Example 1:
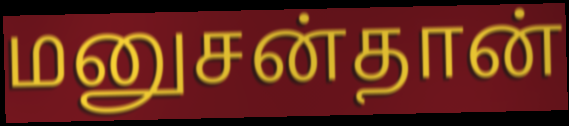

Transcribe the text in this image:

மனுசன்தான்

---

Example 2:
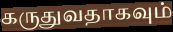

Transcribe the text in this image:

கருதுவதாகவும்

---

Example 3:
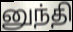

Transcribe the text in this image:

னுந்தி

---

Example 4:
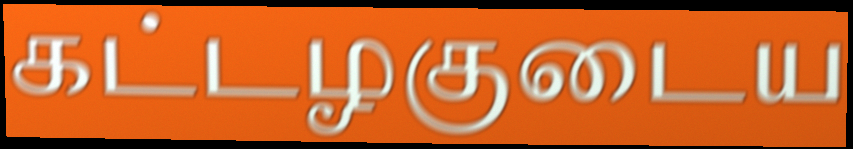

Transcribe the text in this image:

கட்டழகுடைய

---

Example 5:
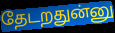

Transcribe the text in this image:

தேடறதுன்னு